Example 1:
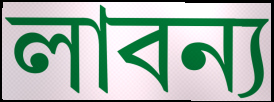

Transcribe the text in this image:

লাবন্য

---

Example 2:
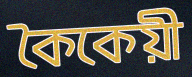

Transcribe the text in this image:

কৈকেয়ী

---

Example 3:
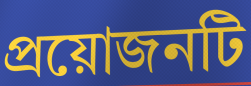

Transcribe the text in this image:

প্রয়োজনটি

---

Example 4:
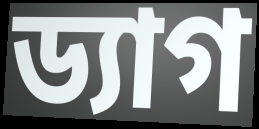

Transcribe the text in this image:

ড্যাগ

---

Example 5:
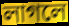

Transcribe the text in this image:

লাগলে